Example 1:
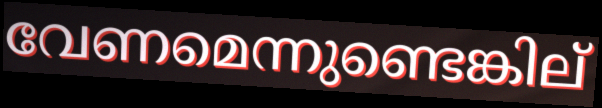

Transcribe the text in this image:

വേണമെന്നുണ്ടെങ്കില്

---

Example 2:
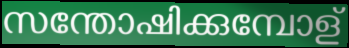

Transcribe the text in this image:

സന്തോഷിക്കുമ്പോള്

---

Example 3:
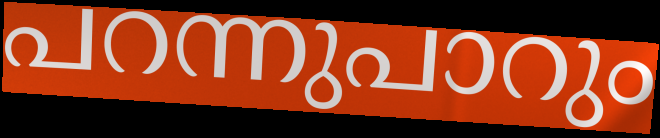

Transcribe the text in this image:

പറന്നുപാറും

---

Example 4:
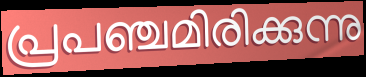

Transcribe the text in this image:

പ്രപഞ്ചമിരിക്കുന്നു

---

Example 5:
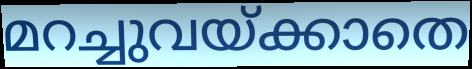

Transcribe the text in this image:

മറച്ചുവയ്ക്കാതെ